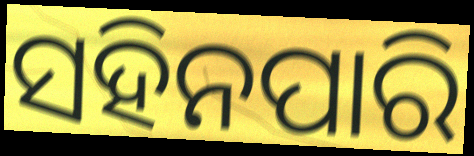
ସହିନପାରି